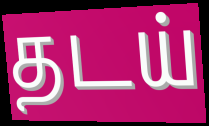
தடய்